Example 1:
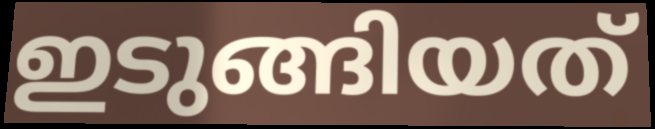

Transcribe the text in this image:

ഇടുങ്ങിയത്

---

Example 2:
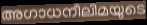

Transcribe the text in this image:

അഗാധനീലിമയുടെ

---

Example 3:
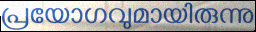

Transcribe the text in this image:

പ്രയോഗവുമായിരുന്നു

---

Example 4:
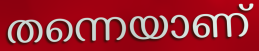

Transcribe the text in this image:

തന്നെയാണ്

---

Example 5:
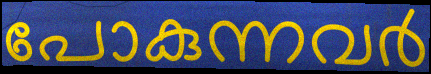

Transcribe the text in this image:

പോകുന്നവർ